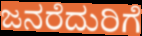
ಜನರೆದುರಿಗೆ